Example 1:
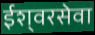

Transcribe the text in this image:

ईश्वरसेवा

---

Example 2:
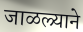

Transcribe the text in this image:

जाळल्याने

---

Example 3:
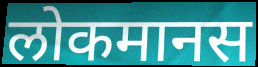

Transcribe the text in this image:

लोकमानस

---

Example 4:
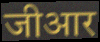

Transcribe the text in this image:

जीआर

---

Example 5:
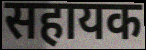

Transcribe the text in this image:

सहायक